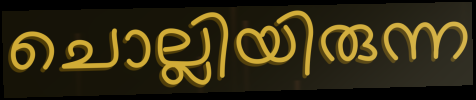
ചൊല്ലിയിരുന്ന